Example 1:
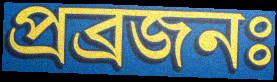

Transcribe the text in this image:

প্ৰব্ৰজনঃ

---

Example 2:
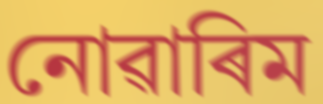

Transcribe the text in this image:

নোৱাৰিম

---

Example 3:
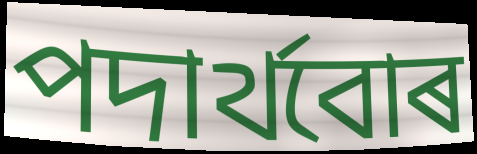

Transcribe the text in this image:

পদাৰ্থবোৰ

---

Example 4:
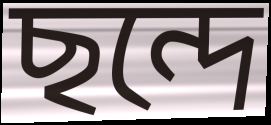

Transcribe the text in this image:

ছন্দে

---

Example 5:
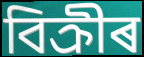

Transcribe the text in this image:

বিক্ৰীৰ